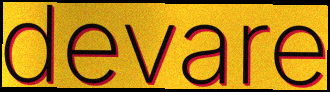
devare